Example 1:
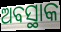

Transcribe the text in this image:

ଅବସ୍ଥାକ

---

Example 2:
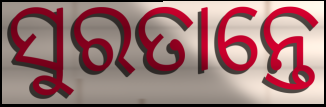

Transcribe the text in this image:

ସୁରତାନ୍ତେ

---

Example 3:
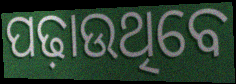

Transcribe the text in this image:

ପଢ଼ାଉଥିବେ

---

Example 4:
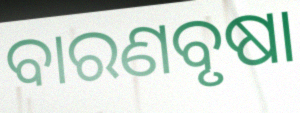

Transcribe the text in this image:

ବାରଣବୃଷା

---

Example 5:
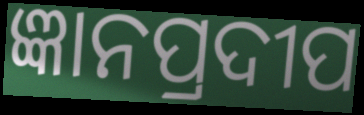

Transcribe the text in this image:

ଜ୍ଞାନପ୍ରଦୀପ